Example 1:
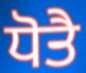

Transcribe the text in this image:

ਧੋਤੈ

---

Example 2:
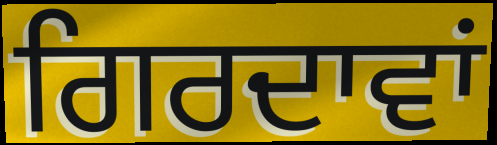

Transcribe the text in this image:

ਗਿਰਦਾਵਾਂ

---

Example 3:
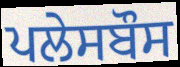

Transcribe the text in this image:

ਪਲੇਸਬੌਸ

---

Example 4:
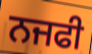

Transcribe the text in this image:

ਨਜਫੀ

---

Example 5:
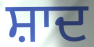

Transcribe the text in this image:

ਸ਼ਾਦ